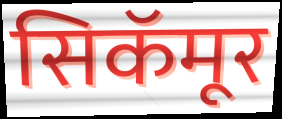
सिकॅमूर